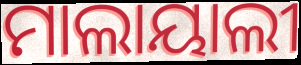
ମାଲାୟାଲୀ